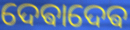
ଦେଵାଦେଵ